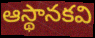
ఆస్థానకవి